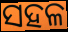
ସହଳ